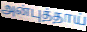
அன்புத்தாய்